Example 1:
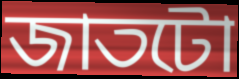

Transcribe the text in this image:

জাতটো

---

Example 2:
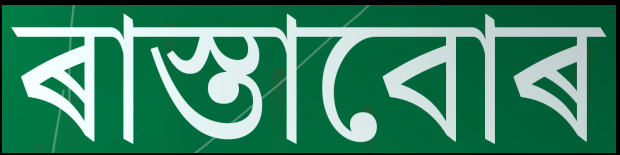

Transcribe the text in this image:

ৰাস্তাবোৰ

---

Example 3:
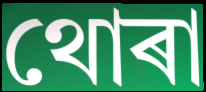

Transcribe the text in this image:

থোৰা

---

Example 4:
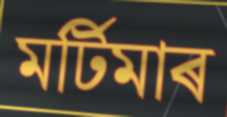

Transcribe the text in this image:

মৰ্টিমাৰ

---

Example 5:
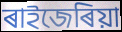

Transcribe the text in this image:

ৰাইজেৰিয়া